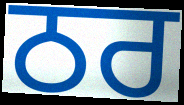
ਠਰ